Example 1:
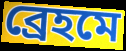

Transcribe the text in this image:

ব্রেহমে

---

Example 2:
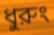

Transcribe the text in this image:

ধুরুং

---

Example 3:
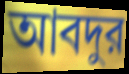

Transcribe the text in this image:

আবদুর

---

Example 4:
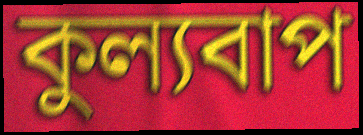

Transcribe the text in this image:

কুল্যবাপ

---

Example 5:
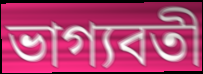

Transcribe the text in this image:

ভাগ্যবতী